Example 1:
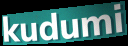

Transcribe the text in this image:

kudumi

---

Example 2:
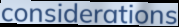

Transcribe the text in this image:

considerations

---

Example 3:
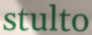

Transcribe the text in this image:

stulto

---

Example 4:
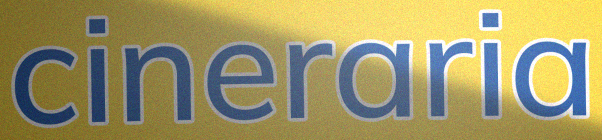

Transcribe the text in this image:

cineraria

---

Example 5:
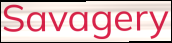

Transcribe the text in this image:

Savagery